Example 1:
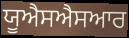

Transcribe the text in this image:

ਯੂਐਸਐਸਆਰ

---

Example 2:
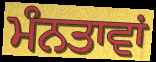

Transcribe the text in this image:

ਮੰਨਤਾਵਾਂ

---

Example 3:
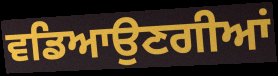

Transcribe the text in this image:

ਵਡਿਆਉਣਗੀਆਂ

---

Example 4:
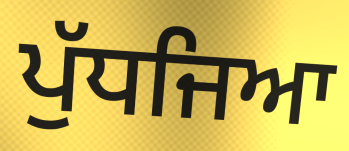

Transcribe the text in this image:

ਪੁੱਧਜਿਆ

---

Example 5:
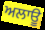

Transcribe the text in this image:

ਅਲਾਊ